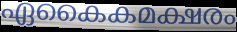
ഏകൈകമക്ഷരം